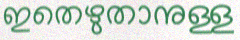
ഇതെഴുതാനുള്ള